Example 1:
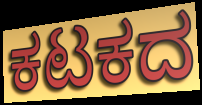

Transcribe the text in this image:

ಕಟಕದ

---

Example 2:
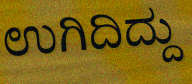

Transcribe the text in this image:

ಉಗಿದಿದ್ದು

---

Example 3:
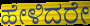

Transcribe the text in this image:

ಹೇಳಿದರೇ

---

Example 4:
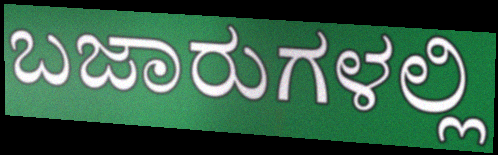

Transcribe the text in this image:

ಬಜಾರುಗಳಲ್ಲಿ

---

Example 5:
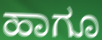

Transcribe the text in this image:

ಹಾಗೂ